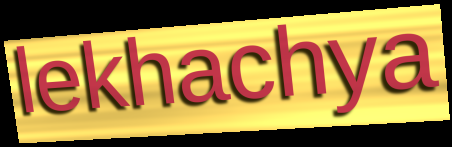
lekhachya